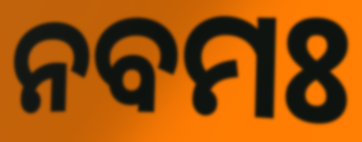
ନବମଃ